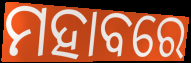
ମହାବରେ